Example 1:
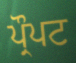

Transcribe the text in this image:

ਪ੍ਰੌਪਟ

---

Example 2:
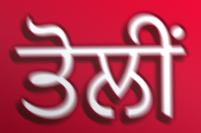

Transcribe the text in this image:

ਤੋਲੀਂ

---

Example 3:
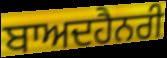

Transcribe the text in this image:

ਬਾਅਦਹੈਨਰੀ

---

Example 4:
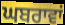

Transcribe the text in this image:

ਘਬਰਾਵਾਂ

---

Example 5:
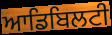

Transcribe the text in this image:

ਆਡਿਬਿਲਟੀ